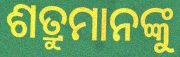
ଶତ୍ରୁମାନଙ୍କୁ